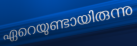
ഏറെയുണ്ടായിരുന്നു